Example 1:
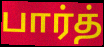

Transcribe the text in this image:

பார்த்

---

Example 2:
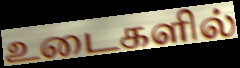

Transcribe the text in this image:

உடைகளில்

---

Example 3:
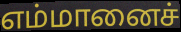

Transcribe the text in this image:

எம்மானைச்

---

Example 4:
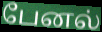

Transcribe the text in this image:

பேனல்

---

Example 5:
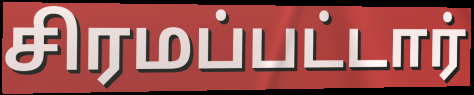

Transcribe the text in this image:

சிரமப்பட்டார்